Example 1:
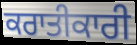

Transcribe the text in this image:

ਕਰਾਤੀਕਾਰੀ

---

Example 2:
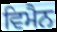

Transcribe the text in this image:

ਵਿਮੈਨ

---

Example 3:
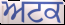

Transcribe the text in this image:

ਅਟਕ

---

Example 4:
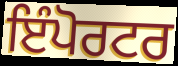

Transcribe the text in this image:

ਇੰਪੋਰਟਰ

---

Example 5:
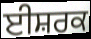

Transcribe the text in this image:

ਈਸ਼ਰਕ